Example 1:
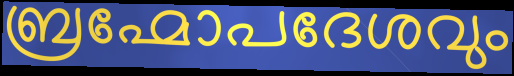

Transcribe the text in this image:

ബ്രഹ്മോപദേശവും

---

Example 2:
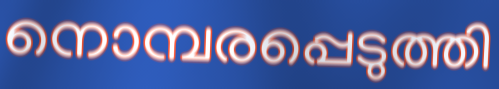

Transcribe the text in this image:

നൊമ്പരപ്പെടുത്തി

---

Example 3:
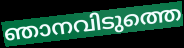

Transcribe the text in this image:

ഞാനവിടുത്തെ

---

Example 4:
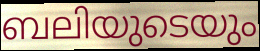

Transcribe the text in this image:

ബലിയുടെയും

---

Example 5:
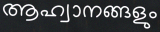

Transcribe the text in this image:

ആഹ്വാനങ്ങളും